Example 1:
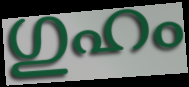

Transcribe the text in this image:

ഗുഹം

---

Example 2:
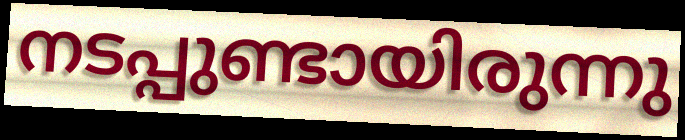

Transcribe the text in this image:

നടപ്പുണ്ടായിരുന്നു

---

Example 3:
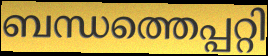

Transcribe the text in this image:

ബന്ധത്തെപ്പറ്റി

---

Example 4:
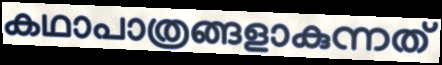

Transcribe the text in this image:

കഥാപാത്രങ്ങളാകുന്നത്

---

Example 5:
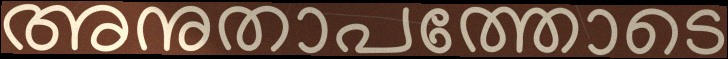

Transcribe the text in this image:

അനുതാപത്തോടെ